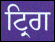
ਟ੍ਰਿਗ